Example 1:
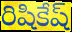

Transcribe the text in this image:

రిషికేష్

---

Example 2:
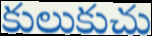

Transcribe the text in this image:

కులుకుచు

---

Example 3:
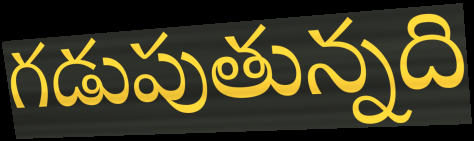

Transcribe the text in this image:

గడుపుతున్నది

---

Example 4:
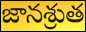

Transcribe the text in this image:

జానశ్రుత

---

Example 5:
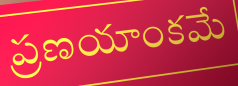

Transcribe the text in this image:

ప్రణయాంకమే